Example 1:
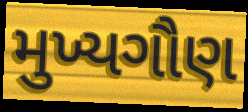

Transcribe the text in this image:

મુખ્યગૌણ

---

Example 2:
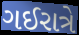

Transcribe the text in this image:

ગઈરાત્રે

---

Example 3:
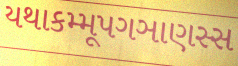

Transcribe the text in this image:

યથાકમ્મૂપગઞાણસ્સ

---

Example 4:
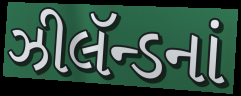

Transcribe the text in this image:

ઝીલૅન્ડનાં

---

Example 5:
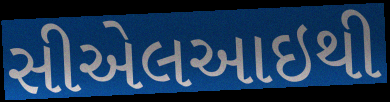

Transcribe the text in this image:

સીએલઆઇથી